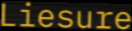
Liesure